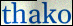
thako